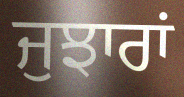
ਜੁਝਾਰਾਂ